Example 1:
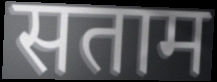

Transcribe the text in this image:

सताम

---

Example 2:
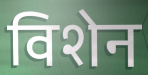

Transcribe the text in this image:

विशेन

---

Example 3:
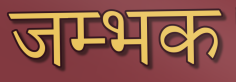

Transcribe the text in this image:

जम्भक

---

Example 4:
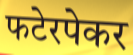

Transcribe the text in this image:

फटेरपेकर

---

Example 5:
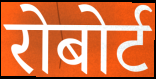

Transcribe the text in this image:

रोबोर्ट